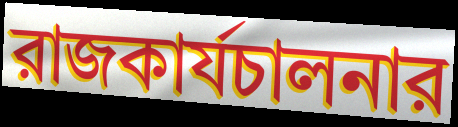
রাজকার্যচালনার